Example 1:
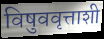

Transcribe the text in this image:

विषुववृत्ताशी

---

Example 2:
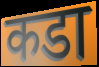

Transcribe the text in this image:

कडा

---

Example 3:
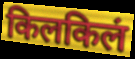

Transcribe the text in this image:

किलकिलं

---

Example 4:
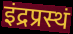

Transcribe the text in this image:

इंद्रप्रस्थं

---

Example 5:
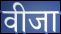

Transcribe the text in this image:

वीजा